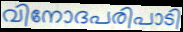
വിനോദപരിപാടി